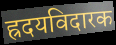
ह्रदयविदारक